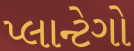
પ્લાન્ટેગો